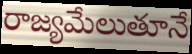
రాజ్యమేలుతూనే